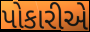
પોકારીએ